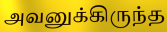
அவனுக்கிருந்த